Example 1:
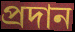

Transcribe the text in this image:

প্রদান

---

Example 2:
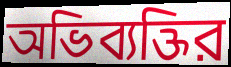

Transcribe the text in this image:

অভিব্যক্তির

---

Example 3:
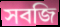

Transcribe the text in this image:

সবজি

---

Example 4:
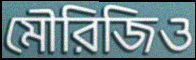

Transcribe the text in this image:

মৌরিজিও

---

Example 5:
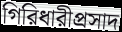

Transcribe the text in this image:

গিরিধারীপ্রসাদ